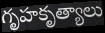
గృహకృత్యాలు